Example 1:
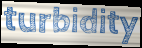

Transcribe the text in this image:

turbidity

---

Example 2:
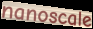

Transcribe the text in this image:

nanoscale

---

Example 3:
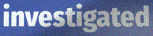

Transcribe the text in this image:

investigated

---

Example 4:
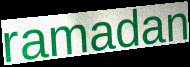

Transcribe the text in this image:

ramadan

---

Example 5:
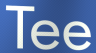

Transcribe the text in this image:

Tee